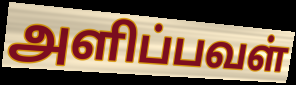
அளிப்பவள்